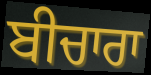
ਬੀਚਾਰਾ